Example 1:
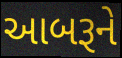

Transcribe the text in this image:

આબરૂને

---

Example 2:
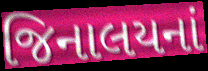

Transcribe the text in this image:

જિનાલયનાં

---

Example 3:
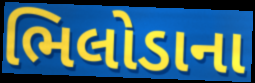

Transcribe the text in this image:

ભિલોડાના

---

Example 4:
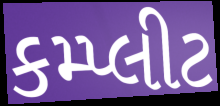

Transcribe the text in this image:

કમ્પ્લીટ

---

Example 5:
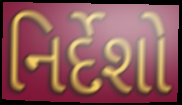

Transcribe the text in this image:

નિર્દેશો